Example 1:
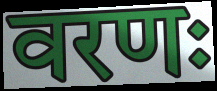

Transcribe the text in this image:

वरणः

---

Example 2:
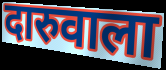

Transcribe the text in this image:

दारुवाला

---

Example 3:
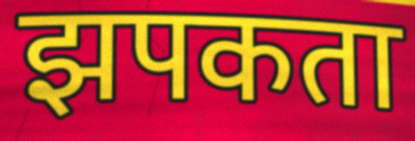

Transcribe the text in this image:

झपकता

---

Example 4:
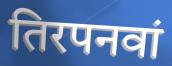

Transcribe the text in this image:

तिरपनवां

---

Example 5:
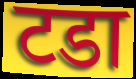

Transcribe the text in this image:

टडा